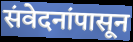
संवेदनांपासून